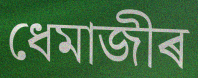
ধেমাজীৰ